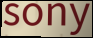
sony